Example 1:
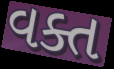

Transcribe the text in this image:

વક્ત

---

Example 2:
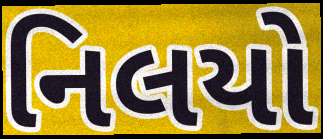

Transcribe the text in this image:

નિલયો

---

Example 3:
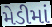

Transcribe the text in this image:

મેડીમાં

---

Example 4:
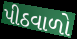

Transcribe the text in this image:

પીઠવાળો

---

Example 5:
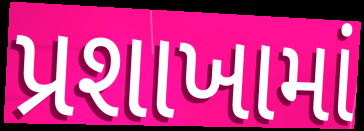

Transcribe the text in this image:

પ્રશાખામાં